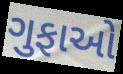
ગુફાઓ